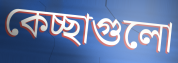
কেচ্ছাগুলো